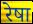
रेषा